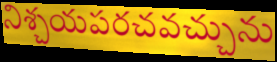
నిశ్చయపరచవచ్చును